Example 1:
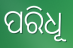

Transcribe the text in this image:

ପରିଧୂ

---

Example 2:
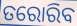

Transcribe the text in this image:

ତରୋରିବ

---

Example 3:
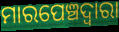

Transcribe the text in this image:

ମାରପେଞ୍ଚଦ୍ବାରା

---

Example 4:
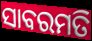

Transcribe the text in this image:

ସାବରମତି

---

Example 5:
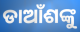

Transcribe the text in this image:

ଡାଆଁଶଙ୍କୁ